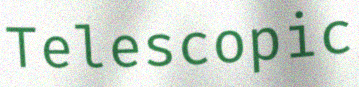
Telescopic